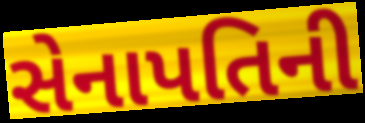
સેનાપતિની